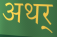
अथर्